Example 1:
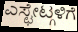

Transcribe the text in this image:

ಎಸ್ಟೇಟ್ಗಳಿಗೆ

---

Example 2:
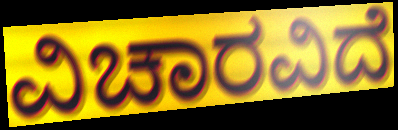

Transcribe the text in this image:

ವಿಚಾರವಿದೆ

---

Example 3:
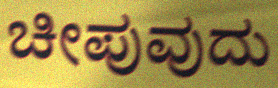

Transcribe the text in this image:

ಚೀಪುವುದು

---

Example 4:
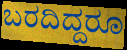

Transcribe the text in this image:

ಬರದಿದ್ದರೂ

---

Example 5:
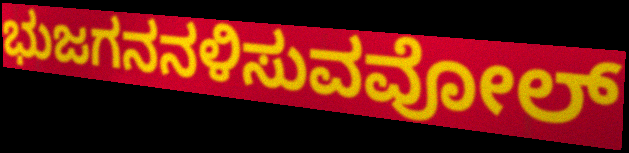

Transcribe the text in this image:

ಭುಜಗನನಳಿಸುವವೋಲ್